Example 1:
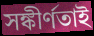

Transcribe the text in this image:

সঙ্কীর্ণতাই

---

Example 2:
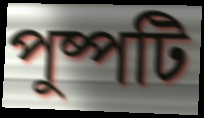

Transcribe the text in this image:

পুষ্পটি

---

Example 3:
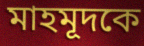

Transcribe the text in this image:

মাহমূদকে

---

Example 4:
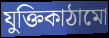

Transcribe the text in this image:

যুক্তিকাঠামো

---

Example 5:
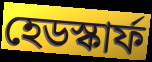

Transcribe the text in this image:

হেডস্কার্ফ